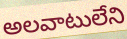
అలవాటులేని